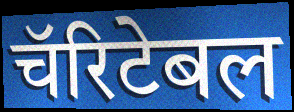
चॅरिटेबल